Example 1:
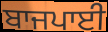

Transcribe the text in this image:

ਬਾਜਪਾਈ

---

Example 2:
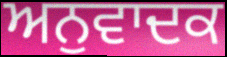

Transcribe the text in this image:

ਅਨੁਵਾਦਕ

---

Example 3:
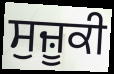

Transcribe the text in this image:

ਸੁਜ਼ੂਕੀ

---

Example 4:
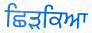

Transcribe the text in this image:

ਛਿੜਕਿਆ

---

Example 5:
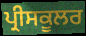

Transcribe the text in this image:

ਪ੍ਰੀਸਕੂਲਰ